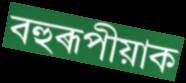
বহুৰূপীয়াক